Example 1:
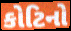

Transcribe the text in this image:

કોટિનો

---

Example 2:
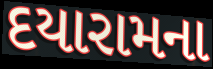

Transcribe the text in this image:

દયારામના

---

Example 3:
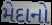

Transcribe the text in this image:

મેદાનો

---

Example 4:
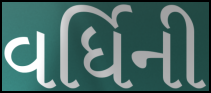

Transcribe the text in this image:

વર્ધિની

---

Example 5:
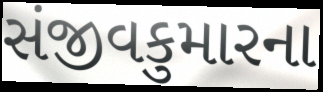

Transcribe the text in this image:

સંજીવકુમારના